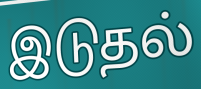
இடுதல்